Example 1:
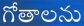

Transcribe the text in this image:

గోతాలను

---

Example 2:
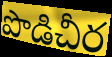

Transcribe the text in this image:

పొడిచీర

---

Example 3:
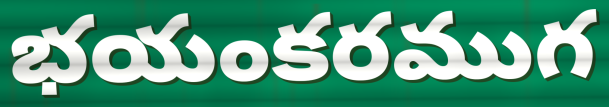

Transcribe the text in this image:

భయంకరముగ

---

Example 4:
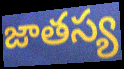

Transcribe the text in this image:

జాతస్య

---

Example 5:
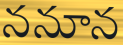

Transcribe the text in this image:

ననూన